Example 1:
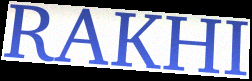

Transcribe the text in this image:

RAKHI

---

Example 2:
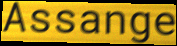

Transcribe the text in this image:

Assange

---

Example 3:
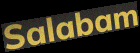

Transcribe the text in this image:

Salabam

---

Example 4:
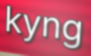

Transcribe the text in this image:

kyng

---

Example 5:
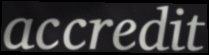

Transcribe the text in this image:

accredit